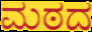
ಮಠದ